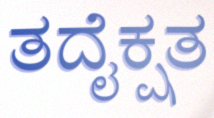
ತದೈಕ್ಷತ